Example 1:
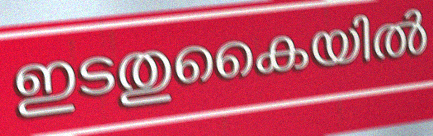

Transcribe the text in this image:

ഇടതുകൈയിൽ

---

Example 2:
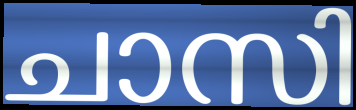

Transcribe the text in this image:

ചാസി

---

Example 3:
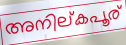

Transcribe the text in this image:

അനില്കപൂര്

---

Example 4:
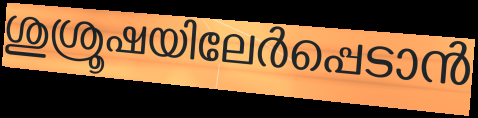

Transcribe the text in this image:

ശുശ്രൂഷയിലേർപ്പെടാൻ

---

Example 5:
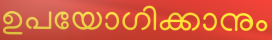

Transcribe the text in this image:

ഉപയോഗിക്കാനും